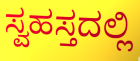
ಸ್ವಹಸ್ತದಲ್ಲಿ